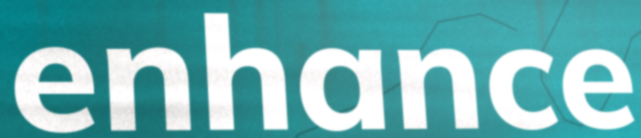
enhance